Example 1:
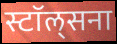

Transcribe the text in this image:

स्टॉल्सना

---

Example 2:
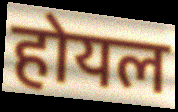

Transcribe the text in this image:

होयल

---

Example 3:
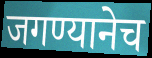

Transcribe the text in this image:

जगण्यानेच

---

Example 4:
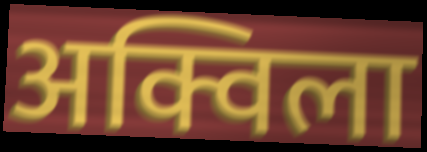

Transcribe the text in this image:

अक्विला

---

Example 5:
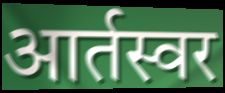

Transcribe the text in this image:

आर्तस्वर